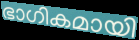
ഭാഗികമായി